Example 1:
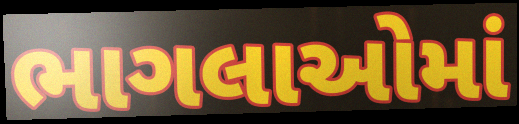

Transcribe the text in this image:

ભાગલાઓમાં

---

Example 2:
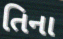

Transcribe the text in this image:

તિના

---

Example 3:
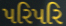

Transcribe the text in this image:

પરિપરિ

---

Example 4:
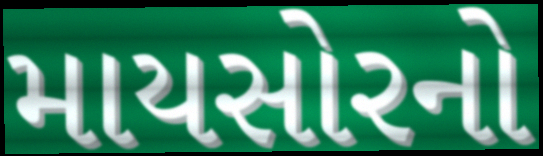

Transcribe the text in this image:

માયસોરનો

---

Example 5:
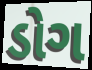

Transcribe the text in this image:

ડોગ